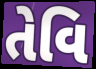
તેવિ